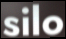
silo